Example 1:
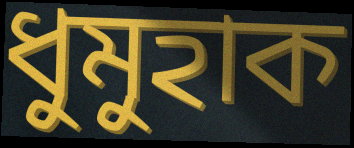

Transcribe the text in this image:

ধুমুহাক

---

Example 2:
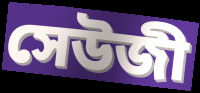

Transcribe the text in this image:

সেউজী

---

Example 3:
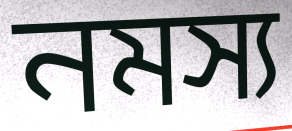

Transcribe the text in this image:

নমস্য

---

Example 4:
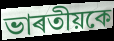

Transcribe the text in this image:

ভাৰতীয়কে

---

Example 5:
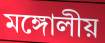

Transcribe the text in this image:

মঙ্গোলীয়